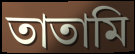
তাতামি